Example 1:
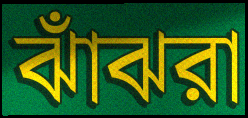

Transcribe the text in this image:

ঝাঁঝরা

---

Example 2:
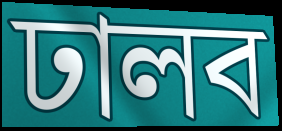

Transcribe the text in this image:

ঢালব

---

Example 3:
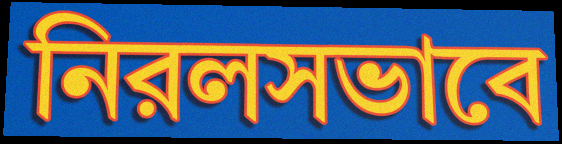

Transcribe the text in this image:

নিরলসভাবে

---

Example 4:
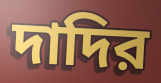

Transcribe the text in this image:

দাদির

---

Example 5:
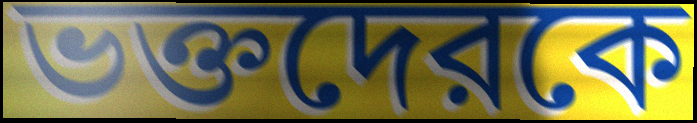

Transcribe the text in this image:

ভক্তদেরকে